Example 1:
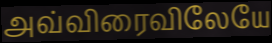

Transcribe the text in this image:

அவ்விரைவிலேயே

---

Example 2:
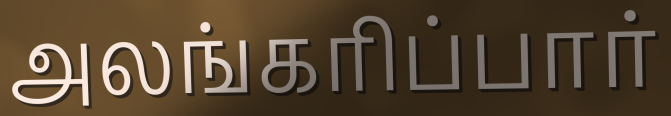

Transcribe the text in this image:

அலங்கரிப்பார்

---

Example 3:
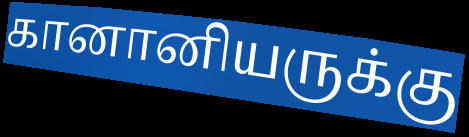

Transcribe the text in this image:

கானானியருக்கு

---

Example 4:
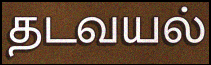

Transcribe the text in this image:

தடவயல்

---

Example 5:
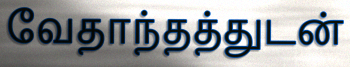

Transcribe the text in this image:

வேதாந்தத்துடன்